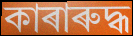
কাৰাৰুদ্ধ